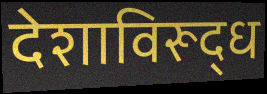
देशाविरूद्ध